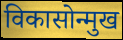
विकासोन्मुख